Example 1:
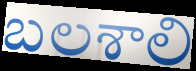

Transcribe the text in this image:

బలశాలి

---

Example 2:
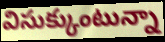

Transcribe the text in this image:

విసుక్కుంటున్నా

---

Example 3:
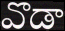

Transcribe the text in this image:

వొడా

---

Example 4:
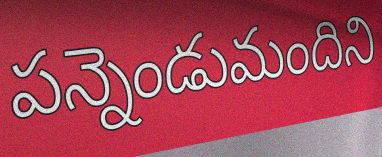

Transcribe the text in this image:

పన్నెండుమందిని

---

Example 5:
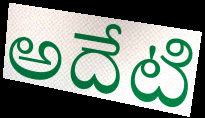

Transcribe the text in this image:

అదేటి